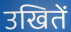
उखितें